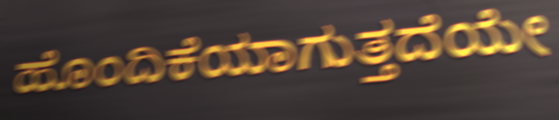
ಹೊಂದಿಕೆಯಾಗುತ್ತದೆಯೇ